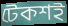
টেকশই